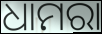
ଧାମରା